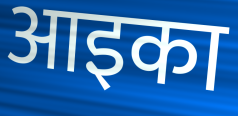
आइका